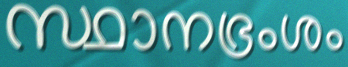
സ്ഥാനഭ്രംശം